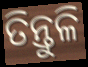
ତିନ୍ତୁଳି